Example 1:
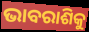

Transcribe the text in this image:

ଭାବରାଶିକୁ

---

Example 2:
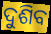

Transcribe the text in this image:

ଦୁଶିବ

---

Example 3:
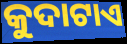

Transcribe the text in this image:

କୁଦାଟାଏ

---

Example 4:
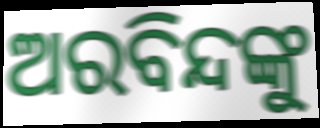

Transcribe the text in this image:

ଅରବିନ୍ଦଙ୍କୁ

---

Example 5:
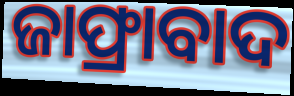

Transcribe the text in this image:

ଜାଫ୍ରାବାଦ